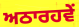
ਅਠਾਰਹਵੇਂ